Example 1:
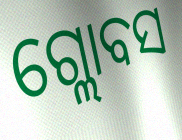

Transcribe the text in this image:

ଗ୍ଲୋବସ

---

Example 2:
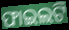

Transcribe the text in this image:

ଫାଇଲଟି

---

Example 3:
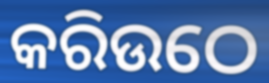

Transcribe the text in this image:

କରିଉଠେ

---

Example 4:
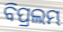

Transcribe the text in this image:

ବିପ୍ରଲମ୍ଭ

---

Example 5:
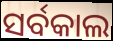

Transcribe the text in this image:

ସର୍ବକାଲ